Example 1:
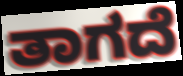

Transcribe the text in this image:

ತಾಗದೆ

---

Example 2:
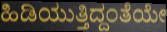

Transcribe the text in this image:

ಹಿಡಿಯುತ್ತಿದ್ದಂತೆಯೇ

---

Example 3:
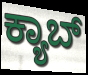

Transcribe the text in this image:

ಕ್ಯಾಬ್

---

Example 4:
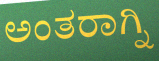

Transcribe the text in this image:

ಅಂತರಾಗ್ನಿ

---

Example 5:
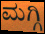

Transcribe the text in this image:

ಮಗ್ಗಿ